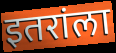
इतरांला